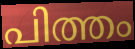
പിത്തം